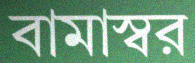
বামাস্বর